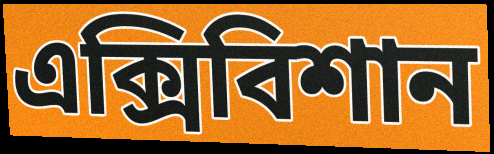
এক্সিবিশান